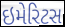
ઇમેરિટસ